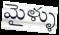
మైళ్ళు